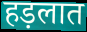
हड़लात